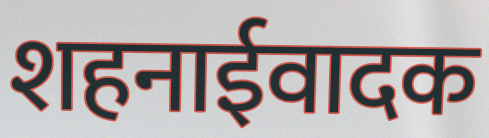
शहनाईवादक